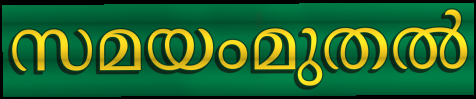
സമയംമുതൽ